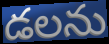
డలను